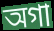
অগা